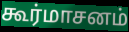
கூர்மாசனம்